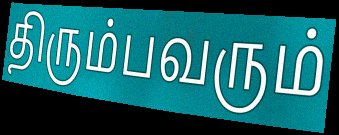
திரும்பவரும்